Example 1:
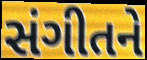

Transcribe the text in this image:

સંગીતને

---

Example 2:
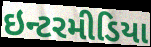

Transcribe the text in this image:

ઇન્ટરમીડિયા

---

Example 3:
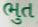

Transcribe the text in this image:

ભુત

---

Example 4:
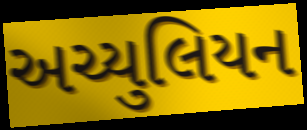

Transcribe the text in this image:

અચ્યુલિયન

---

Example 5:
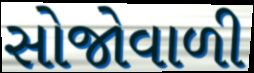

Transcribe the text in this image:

સોજોવાળી